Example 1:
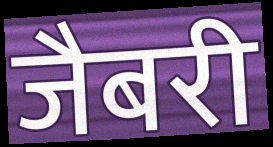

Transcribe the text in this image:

जैबरी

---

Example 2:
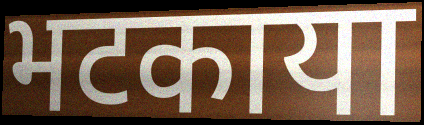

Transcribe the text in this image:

भटकाया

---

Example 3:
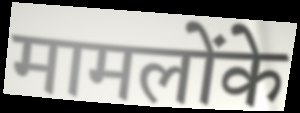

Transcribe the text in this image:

मामलोंके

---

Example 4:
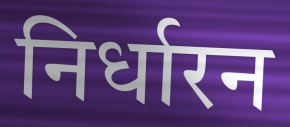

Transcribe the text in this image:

निर्धारन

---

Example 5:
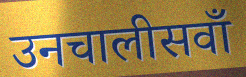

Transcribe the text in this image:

उनचालीसवाँ